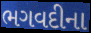
ભગવદીના